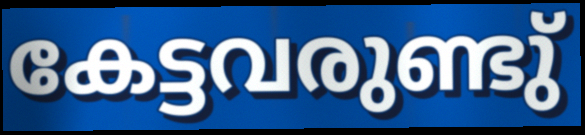
കേട്ടവരുണ്ടു്